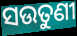
ସଉତୁଣୀ